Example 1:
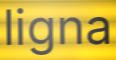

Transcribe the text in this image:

ligna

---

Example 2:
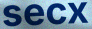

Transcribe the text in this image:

secx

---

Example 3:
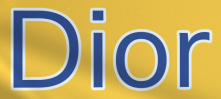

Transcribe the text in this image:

Dior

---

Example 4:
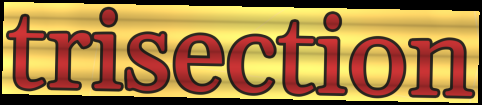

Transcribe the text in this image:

trisection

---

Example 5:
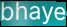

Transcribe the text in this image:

bhaye